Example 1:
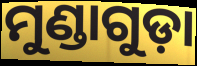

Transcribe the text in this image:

ମୁଣ୍ଡାଗୁଡ଼ା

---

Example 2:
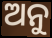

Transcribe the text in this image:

ଅନୁ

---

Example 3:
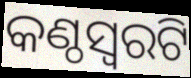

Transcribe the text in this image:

କଣ୍ଠସ୍ଵରଟି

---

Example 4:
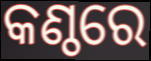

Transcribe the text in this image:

କଣ୍ଠରେ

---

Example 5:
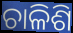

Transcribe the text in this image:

ଚାଳିଶି